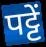
पट्टें